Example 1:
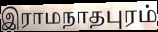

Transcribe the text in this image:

இராமநாதபுரம்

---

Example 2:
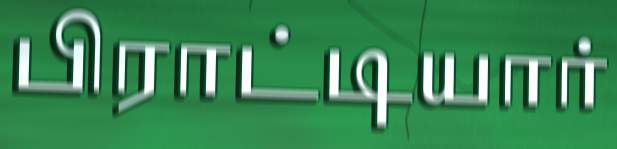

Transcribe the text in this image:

பிராட்டியார்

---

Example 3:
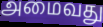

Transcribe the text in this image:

அமைவது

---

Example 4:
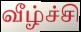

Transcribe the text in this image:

வீழ்ச்சி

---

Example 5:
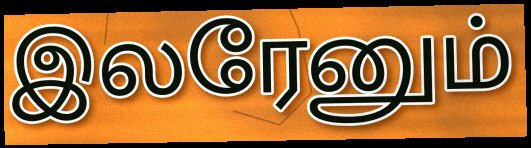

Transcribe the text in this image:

இலரேனும்